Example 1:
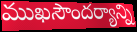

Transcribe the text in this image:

ముఖసౌందర్యాన్ని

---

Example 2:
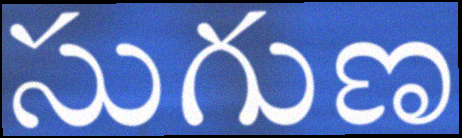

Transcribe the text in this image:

సుగుణ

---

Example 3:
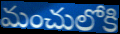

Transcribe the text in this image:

మంచులోకి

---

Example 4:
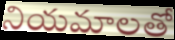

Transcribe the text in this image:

నియమాలతో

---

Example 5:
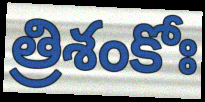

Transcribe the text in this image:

త్రిశంకోః